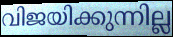
വിജയിക്കുന്നില്ല